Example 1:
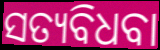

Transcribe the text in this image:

ସତ୍ୟବିଧବା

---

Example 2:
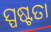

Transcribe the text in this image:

ସ୍ପଷ୍ଟତା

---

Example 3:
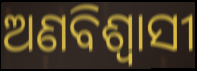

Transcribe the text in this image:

ଅଣବିଶ୍ୱାସୀ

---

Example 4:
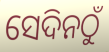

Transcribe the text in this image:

ସେଦିନଠୁଁ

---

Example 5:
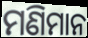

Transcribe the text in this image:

ମଣିମାନ